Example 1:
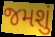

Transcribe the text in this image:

જમશું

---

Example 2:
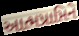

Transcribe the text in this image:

આત્મપ્રાપ્તિને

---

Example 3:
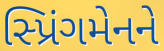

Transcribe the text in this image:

સ્પ્રિંગમેનને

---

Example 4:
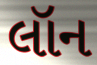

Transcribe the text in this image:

લૉન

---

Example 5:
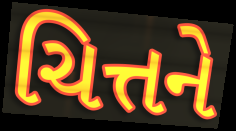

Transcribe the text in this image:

ચિત્તને